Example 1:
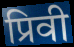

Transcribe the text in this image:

प्रिवी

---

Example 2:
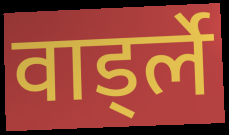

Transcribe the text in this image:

वार्ड्ले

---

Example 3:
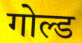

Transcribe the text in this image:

गोल्‍ड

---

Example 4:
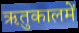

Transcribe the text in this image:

ऋतुकालमें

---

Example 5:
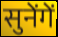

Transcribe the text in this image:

सुनेंगें